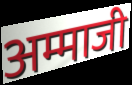
अम्माजी